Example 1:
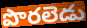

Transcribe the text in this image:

పొరలెడు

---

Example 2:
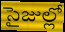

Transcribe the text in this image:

సైజుల్లో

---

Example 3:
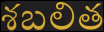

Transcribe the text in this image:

శబలిత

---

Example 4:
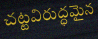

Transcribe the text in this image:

చట్టవిరుద్ధమైన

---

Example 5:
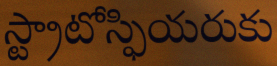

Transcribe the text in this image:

స్ట్రాటోస్ఫియరుకు